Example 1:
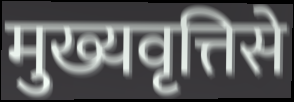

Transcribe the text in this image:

मुख्यवृत्तिसे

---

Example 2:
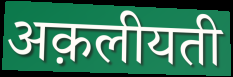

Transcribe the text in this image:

अक़लीयती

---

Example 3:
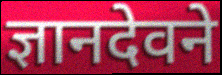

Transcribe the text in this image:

ज्ञानदेवने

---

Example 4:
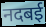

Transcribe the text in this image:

नदबई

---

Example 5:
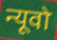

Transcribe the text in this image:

न्यूवो